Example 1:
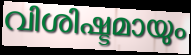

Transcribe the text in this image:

വിശിഷ്ടമായും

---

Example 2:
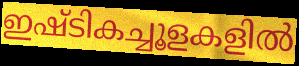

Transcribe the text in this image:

ഇഷ്ടികച്ചൂളകളിൽ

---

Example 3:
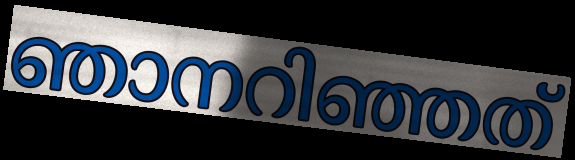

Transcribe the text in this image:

ഞാനറിഞ്ഞത്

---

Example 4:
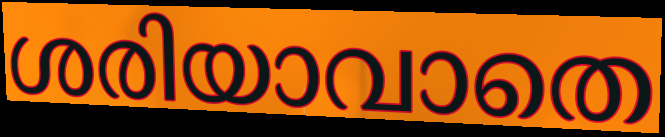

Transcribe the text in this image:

ശരിയാവാതെ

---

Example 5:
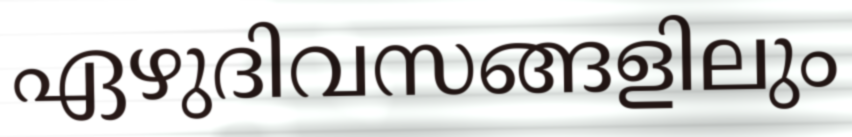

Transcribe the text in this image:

ഏഴുദിവസങ്ങളിലും